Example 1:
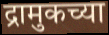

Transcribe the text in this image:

द्रामुकच्या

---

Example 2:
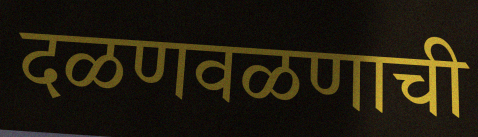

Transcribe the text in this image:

दळणवळणाची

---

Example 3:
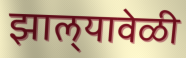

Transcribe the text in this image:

झाल्यावेळी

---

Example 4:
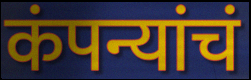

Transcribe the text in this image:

कंपन्यांचं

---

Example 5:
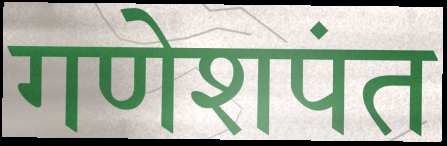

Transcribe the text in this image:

गणेशपंत